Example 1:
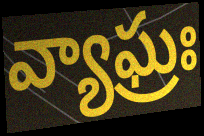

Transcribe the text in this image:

వ్యాఘ్రః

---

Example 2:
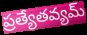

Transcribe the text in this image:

ప్రత్యేతవ్యమ్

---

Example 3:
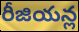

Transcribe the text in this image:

రీజియన్ల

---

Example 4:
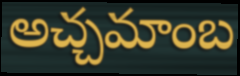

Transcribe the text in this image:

అచ్చమాంబ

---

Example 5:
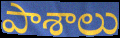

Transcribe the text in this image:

పాశాలు